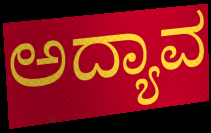
ಅದ್ಯಾವ